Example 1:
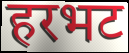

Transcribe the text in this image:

हरभट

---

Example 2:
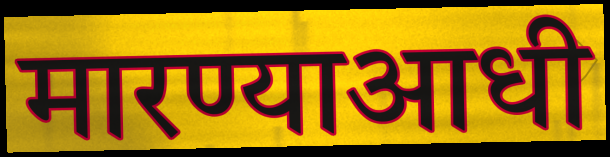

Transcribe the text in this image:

मारण्याआधी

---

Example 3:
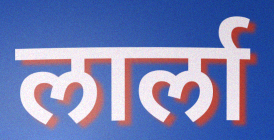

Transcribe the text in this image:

लार्ला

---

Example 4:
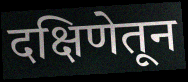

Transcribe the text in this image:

दक्षिणेतून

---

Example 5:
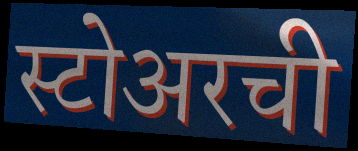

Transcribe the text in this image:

स्टोअरची